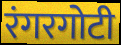
रंगरगोटी